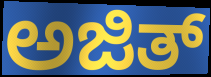
ಅಜಿತ್